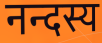
नन्दस्य